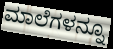
ಮಾಲೆಗಳನ್ನೂ